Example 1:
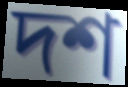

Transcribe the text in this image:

দশ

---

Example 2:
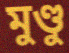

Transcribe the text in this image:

মুণ্ডু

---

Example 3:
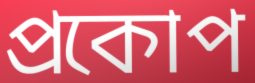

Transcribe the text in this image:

প্ৰকোপ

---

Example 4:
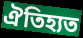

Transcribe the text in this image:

ঐতিহ্যত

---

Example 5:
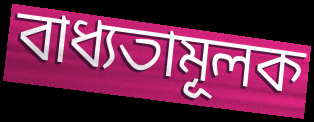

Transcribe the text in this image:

বাধ্যতামূলক